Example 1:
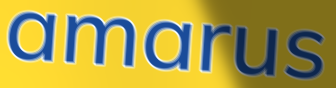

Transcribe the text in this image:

amarus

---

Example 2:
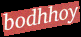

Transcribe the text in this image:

bodhhoy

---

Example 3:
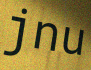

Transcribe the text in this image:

jnu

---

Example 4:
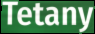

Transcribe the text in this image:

Tetany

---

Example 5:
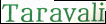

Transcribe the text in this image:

Taravali